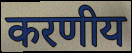
करणीय